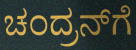
ಚಂದ್ರನ್‌ಗೆ